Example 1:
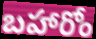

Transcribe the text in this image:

బహారోం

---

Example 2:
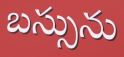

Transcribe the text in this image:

బస్సును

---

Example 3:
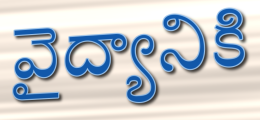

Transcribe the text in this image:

వైద్యానికి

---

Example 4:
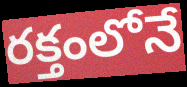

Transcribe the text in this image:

రక్తంలోనే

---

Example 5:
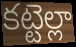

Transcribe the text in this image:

కట్టెల్లా